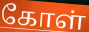
கோள்